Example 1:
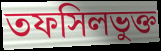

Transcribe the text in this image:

তফসিলভুক্ত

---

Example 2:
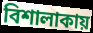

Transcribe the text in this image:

বিশালাকায়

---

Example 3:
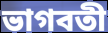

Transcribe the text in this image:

ভাগবতী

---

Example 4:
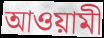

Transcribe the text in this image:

আওয়ামী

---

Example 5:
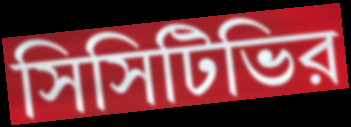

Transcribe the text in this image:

সিসিটিভির